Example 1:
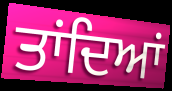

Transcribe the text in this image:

ਤਾਂਦਿਆਂ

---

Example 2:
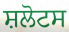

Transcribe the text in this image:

ਸ਼ਲੋਟਸ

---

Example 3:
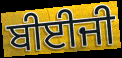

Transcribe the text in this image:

ਬੀਈਜੀ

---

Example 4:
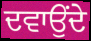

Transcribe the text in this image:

ਦਵਾਉਂਦੇ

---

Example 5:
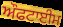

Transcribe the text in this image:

ਔਫਟਾਈਮ